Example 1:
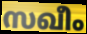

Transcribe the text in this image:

സഖീം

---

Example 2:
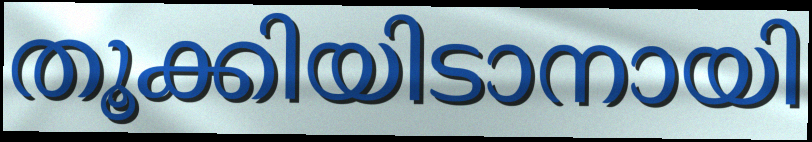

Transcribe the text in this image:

തൂക്കിയിടാനായി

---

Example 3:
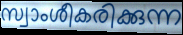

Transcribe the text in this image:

സ്വാംശീകരിക്കുന്ന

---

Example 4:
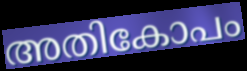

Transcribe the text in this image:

അതികോപം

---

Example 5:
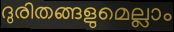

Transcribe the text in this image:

ദുരിതങ്ങളുമെല്ലാം